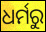
ଧର୍ମରୁ